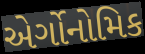
એર્ગોનોમિક